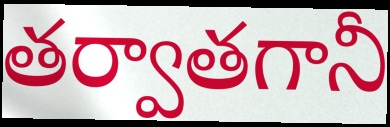
తర్వాతగానీ